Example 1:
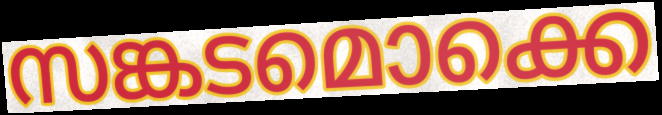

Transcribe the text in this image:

സങ്കടമൊക്കെ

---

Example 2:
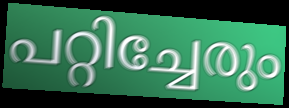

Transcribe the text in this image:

പറ്റിച്ചേരും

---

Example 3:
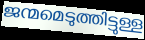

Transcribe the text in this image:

ജന്മമെടുത്തിട്ടുള്ള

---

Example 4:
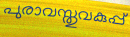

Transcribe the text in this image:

പുരാവസ്തുവകുപ്പ്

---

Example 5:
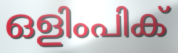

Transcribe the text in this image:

ഒളിംപിക്